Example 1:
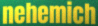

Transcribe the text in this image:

nehemich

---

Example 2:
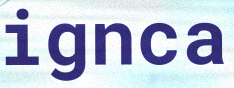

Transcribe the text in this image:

ignca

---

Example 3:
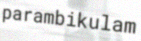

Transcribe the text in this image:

parambikulam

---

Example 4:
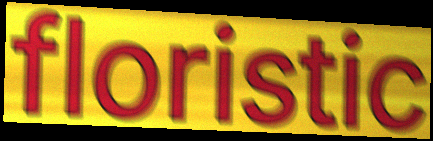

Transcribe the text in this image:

floristic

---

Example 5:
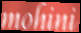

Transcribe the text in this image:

mohini